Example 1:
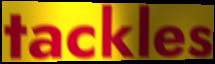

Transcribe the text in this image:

tackles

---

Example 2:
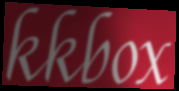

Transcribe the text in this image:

kkbox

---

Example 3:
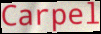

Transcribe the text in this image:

Carpel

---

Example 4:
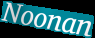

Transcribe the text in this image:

Noonan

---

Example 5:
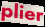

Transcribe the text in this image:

plier